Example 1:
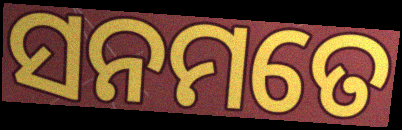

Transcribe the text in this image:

ସନମତେ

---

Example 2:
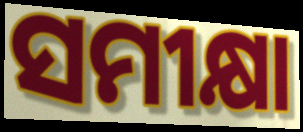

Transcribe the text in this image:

ସମୀକ୍ଷା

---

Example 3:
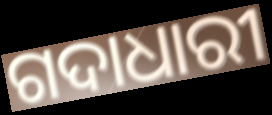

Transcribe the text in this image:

ଗଦାଧାରୀ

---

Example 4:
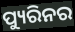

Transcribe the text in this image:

ପ୍ୟୁରିନର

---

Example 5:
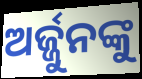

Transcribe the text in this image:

ଅର୍ଜ୍ଜୁନଙ୍କୁ